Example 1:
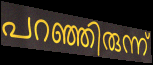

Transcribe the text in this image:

പറഞ്ഞിരുന്ന്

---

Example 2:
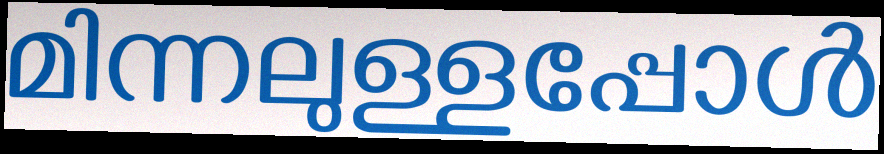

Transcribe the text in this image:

മിന്നലുള്ളപ്പോൾ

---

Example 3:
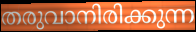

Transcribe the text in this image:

തരുവാനിരിക്കുന്ന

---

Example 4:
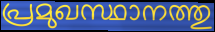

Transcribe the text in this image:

പ്രമുഖസ്ഥാനത്തു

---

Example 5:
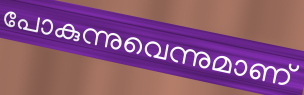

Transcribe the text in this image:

പോകുന്നുവെന്നുമാണ്